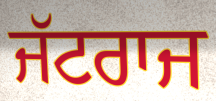
ਜੱਟਰਾਜ